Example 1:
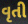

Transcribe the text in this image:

વૃતી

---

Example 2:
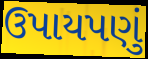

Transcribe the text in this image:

ઉપાયપણું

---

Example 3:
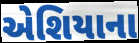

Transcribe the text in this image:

એશિયાના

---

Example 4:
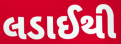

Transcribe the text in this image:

લડાઈથી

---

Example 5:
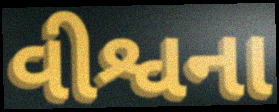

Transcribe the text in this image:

વીશ્વના